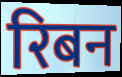
रिबन